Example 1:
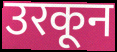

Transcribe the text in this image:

उरकून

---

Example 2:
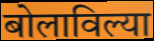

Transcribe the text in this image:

बोलाविल्या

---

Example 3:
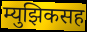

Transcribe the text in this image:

म्युझिकसह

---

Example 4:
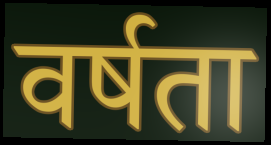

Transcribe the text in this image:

वर्षता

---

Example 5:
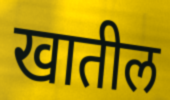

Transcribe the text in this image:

खातील